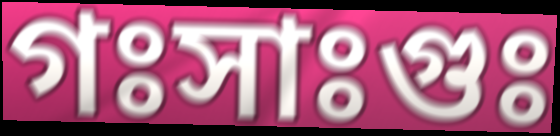
গঃসাঃগুঃ